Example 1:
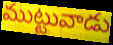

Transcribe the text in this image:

ముట్టువాడు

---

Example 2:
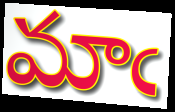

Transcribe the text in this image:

మాఁ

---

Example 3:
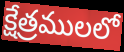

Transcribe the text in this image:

క్షేత్రములలో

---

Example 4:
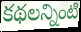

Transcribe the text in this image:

కథలన్నింటి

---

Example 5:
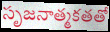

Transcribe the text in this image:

సృజనాత్మకతతో